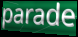
parade